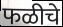
फळीचे